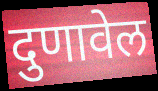
दुणावेल